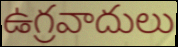
ఉగ్రవాదులు